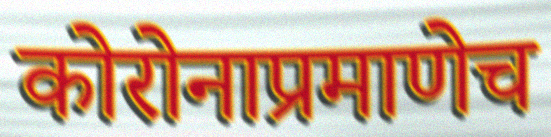
कोरोनाप्रमाणेच